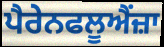
ਪੈਰੇਨਫਲੂਐਂਜ਼ਾ